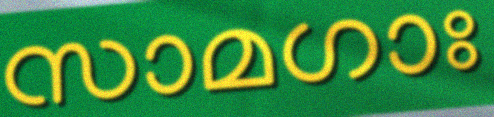
സാമഗാഃ